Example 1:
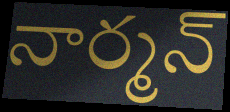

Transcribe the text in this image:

నార్మన్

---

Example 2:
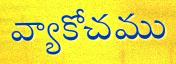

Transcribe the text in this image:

వ్యాకోచము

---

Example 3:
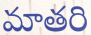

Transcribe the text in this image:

మాతరి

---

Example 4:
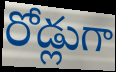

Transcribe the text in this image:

రోడ్లుగా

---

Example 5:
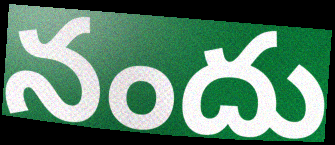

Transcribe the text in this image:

నందు